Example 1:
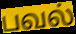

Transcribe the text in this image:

பவல்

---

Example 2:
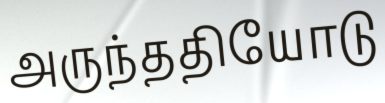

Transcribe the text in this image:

அருந்ததியோடு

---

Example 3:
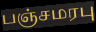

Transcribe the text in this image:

பஞ்சமரபு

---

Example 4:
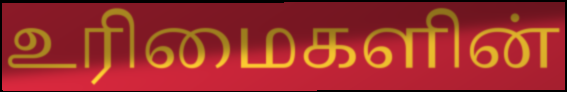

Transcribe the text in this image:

உரிமைகளின்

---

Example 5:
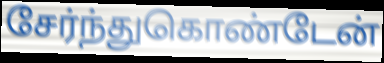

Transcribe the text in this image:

சேர்ந்துகொண்டேன்